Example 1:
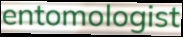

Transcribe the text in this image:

entomologist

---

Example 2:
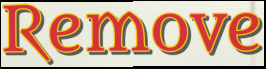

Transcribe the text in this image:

Remove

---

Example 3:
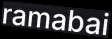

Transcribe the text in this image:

ramabai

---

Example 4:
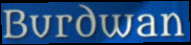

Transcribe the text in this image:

Burdwan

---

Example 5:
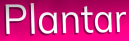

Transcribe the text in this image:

Plantar